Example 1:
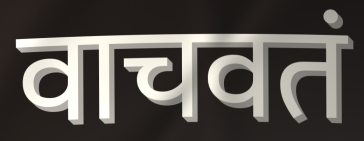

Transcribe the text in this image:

वाचवतं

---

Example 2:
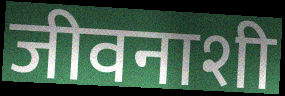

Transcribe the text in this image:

जीवनाशी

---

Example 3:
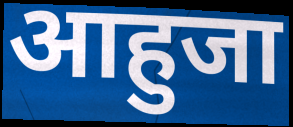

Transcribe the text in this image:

आहुजा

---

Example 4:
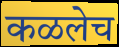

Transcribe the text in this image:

कळलेच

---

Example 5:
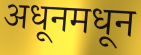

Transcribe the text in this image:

अधूनमधून